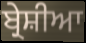
ਬ੍ਰੇਸ਼ੀਆ